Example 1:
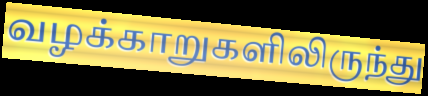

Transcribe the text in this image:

வழக்காறுகளிலிருந்து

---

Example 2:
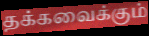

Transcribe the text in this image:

தக்கவைக்கும்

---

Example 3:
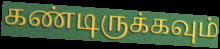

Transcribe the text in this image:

கண்டிருக்கவும்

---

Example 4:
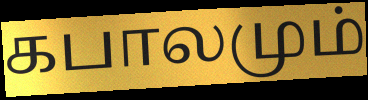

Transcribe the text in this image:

கபாலமும்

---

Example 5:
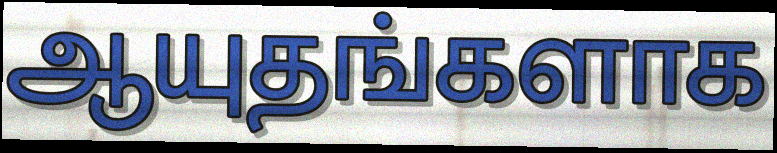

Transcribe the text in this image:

ஆயுதங்களாக